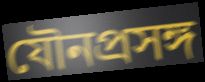
যৌনপ্রসঙ্গ